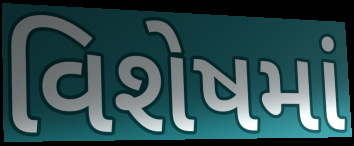
વિશેષમાં